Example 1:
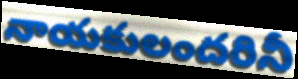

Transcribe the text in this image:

నాయకులందరినీ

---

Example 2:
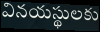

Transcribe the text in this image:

వినయస్థులకు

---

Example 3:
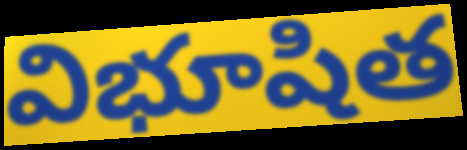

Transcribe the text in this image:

విభూషిత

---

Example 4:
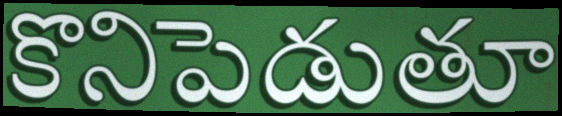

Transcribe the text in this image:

కొనిపెడుతూ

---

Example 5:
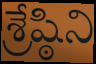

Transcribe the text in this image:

శ్రేష్ఠిని